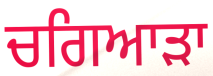
ਚਗਿਆੜਾ